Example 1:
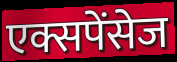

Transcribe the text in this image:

एक्सपेंसेज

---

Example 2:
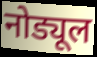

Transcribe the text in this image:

नोड्यूल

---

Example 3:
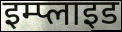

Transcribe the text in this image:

इम्प्लाइड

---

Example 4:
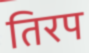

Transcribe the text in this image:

तिरप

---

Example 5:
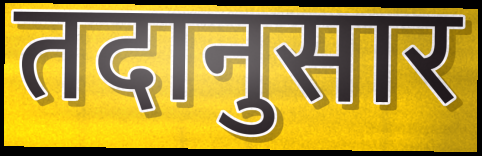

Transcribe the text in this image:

तदानुसार